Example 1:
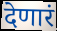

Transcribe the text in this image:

देणारं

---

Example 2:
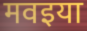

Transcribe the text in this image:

मवइया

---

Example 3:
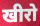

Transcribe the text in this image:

खीरो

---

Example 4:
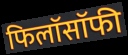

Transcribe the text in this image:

फिलॉसॉफी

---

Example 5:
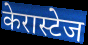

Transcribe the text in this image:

केरास्टेज